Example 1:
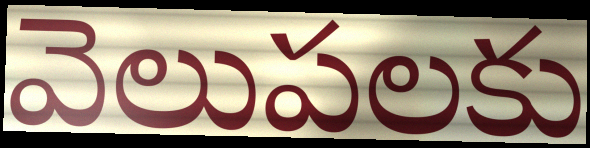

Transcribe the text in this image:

వెలుపలకు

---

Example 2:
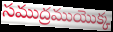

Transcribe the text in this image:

సముద్రముయొక్క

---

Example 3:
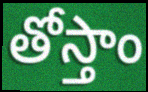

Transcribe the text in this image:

తోస్తాం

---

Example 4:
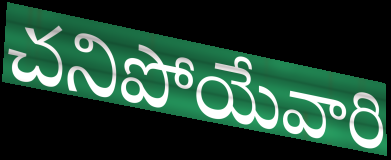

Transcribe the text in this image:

చనిపోయేవారి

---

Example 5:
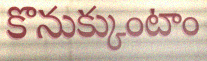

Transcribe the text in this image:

కొనుక్కుంటాం